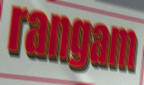
rangam